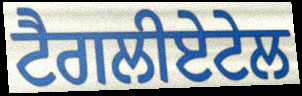
ਟੈਗਲੀਏਟੇਲ